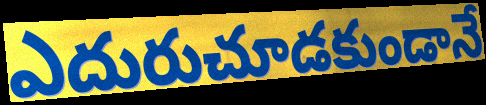
ఎదురుచూడకుండానే